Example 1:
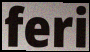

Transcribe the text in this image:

feri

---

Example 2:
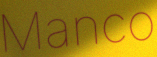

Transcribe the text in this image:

Manco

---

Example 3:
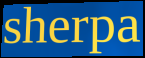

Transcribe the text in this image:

sherpa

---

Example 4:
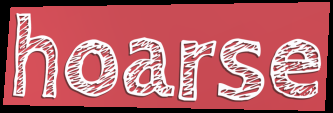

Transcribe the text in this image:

hoarse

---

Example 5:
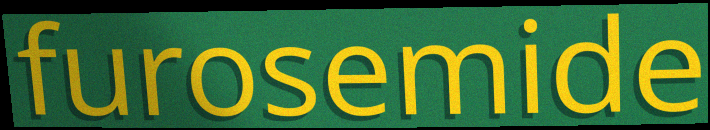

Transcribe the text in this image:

furosemide